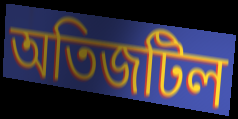
অতিজটিল